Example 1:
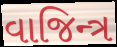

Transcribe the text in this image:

વાજિન્ત્ર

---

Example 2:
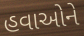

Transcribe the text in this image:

હવાઓને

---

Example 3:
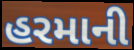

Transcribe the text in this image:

હરમાની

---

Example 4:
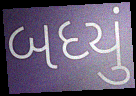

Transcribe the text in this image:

બધ્યું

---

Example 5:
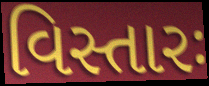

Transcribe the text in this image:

વિસ્તારઃ